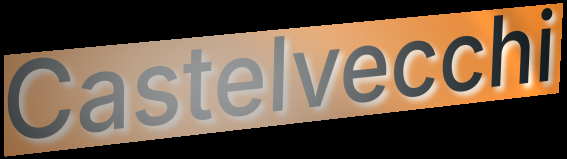
Castelvecchi